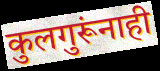
कुलगुरूंनाही